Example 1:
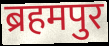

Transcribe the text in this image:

ब्रहमपुर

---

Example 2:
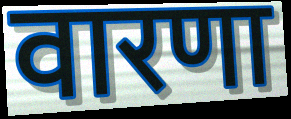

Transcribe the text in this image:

वारणा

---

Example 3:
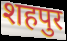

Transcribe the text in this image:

शहपुर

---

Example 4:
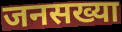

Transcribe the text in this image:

जनसख्या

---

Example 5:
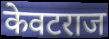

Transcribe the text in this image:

केवटराज